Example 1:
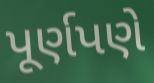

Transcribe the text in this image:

પૂર્ણપણે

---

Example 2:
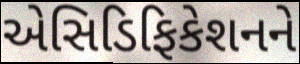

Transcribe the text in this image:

એસિડિફિકેશનને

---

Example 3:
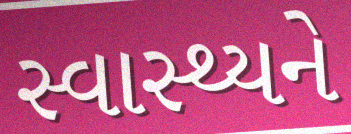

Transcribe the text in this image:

સ્વાસ્થ્યને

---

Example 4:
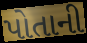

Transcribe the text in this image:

પોતાની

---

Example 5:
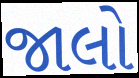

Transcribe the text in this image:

જાલો